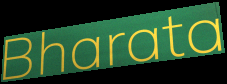
Bharata